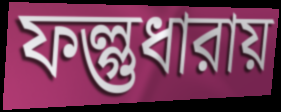
ফল্গুধারায়